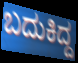
ಬದುಕಿದ್ದ